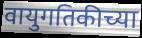
वायुगतिकीच्या